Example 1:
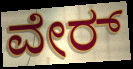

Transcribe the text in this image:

ವೇರ್‍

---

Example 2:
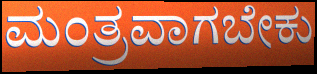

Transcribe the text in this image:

ಮಂತ್ರವಾಗಬೇಕು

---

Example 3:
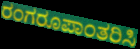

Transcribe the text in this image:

ರಂಗರೂಪಾಂತರಿಸಿ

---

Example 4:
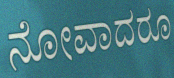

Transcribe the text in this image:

ನೋವಾದರೂ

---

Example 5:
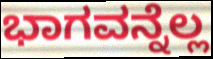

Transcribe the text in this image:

ಭಾಗವನ್ನೆಲ್ಲ